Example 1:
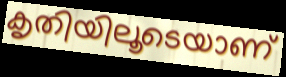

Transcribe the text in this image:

കൃതിയിലൂടെയാണ്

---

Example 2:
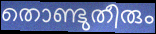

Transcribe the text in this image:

തൊണ്ടുതീരും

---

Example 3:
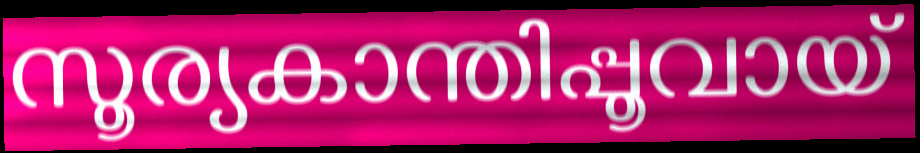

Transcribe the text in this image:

സൂര്യകാന്തിപ്പൂവായ്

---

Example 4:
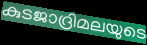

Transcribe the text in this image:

കുടജാദ്രിമലയുടെ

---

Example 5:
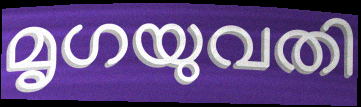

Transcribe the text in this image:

മൃഗയുവതി